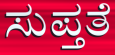
ಸುಪ್ತತೆ